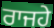
ਰਾਜਹੇ